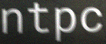
ntpc